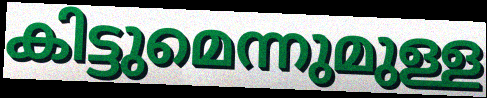
കിട്ടുമെന്നുമുള്ള